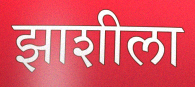
झाशीला